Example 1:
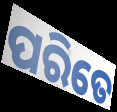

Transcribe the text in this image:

ପରିତେ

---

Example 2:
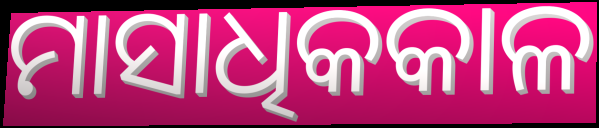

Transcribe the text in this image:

ମାସାଧିକକାଳ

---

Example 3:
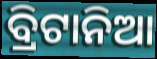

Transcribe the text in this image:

ବ୍ରିଟାନିଆ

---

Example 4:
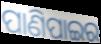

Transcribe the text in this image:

ପାଣିପାଇର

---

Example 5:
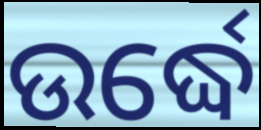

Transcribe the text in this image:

ଉର୍ଦ୍ଧେ